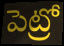
పెట్రో